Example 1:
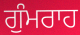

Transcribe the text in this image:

ਗੁੰਮਰਾਹ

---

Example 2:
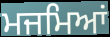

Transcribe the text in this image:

ਮਜਮਿਆਂ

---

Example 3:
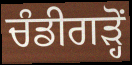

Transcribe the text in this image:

ਚੰਡੀਗੜ੍ਹੋਂ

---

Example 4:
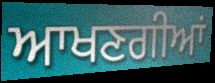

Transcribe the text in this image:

ਆਖਣਗੀਆਂ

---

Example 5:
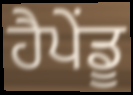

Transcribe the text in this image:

ਹੈਪੇਂਡੂ